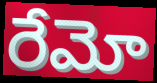
రేమో